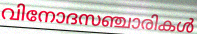
വിനോദസഞ്ചാരികൾ